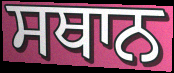
ਸਥਾਨ